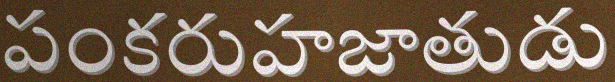
పంకరుహజాతుడు